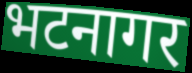
भटनागर